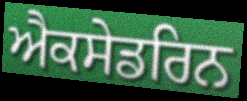
ਐਕਸੇਡਰਿਨ